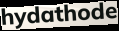
hydathode